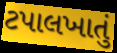
ટપાલખાતું